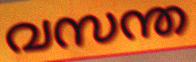
വസന്ത